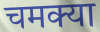
चमक्या